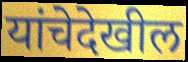
यांचेदेखील